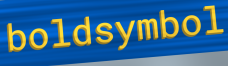
boldsymbol